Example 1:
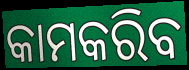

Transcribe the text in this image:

କାମକରିବ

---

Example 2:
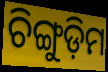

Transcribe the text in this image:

ଚିଙ୍ଗୁଡ଼ିମ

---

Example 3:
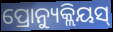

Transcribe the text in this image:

ପ୍ରୋନ୍ୟୁକ୍ଲିୟସ୍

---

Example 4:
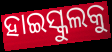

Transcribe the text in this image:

ହାଇସ୍କୁଲକୁ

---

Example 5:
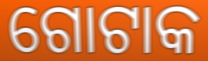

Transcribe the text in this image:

ଗୋଟାକ